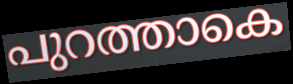
പുറത്താകെ